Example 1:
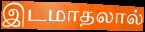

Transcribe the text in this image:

இடமாதலால்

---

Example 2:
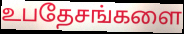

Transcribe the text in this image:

உபதேசங்களை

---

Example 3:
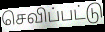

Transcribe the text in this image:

செவிப்பட்டு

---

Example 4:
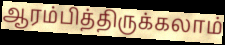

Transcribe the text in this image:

ஆரம்பித்திருக்கலாம்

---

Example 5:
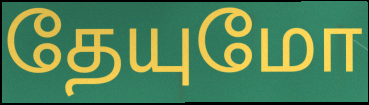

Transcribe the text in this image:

தேயுமோ